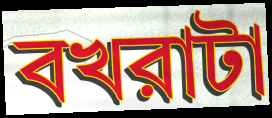
বখরাটা